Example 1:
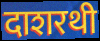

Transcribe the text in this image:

दाशरथी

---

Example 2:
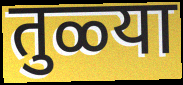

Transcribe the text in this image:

तुळ्या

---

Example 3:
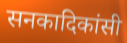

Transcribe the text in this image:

सनकादिकांसी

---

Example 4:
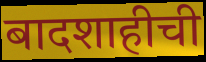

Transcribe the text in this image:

बादशाहीची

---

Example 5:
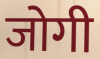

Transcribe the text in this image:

जोगी